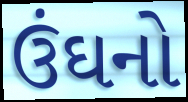
ઉંઘનો